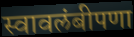
स्वावलंबीपणा